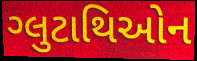
ગ્લુટાથિઓન